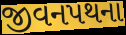
જીવનપથના